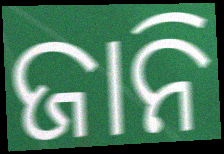
ଜାନି